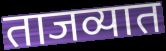
ताजव्यात